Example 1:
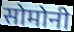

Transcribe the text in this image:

सोमोनी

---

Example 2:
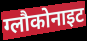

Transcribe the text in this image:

ग्लौकोनाइट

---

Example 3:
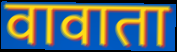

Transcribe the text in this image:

वावाता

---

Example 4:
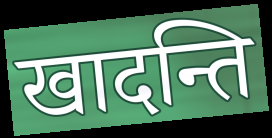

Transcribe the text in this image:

खादन्ति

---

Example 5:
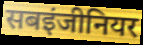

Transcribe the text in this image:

सबइंजीनियर